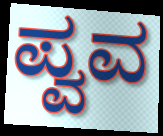
ಪ್ವವ